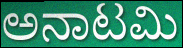
ಅನಾಟಮಿ